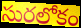
సురలోకం